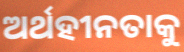
ଅର୍ଥହୀନତାକୁ